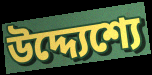
উদ্দ্যেশ্যে